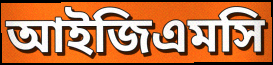
আইজিএমসি